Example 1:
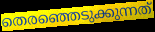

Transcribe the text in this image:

തെരഞ്ഞെടുക്കുന്നത്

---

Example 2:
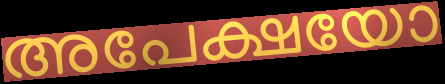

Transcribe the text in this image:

അപേക്ഷയോ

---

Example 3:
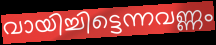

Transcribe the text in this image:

വായിച്ചിട്ടെന്നവണ്ണം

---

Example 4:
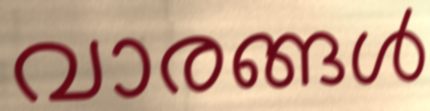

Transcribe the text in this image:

വാരങ്ങൾ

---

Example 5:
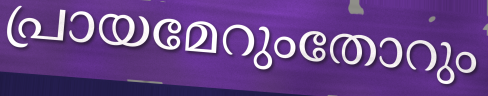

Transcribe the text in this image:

പ്രായമേറുംതോറും